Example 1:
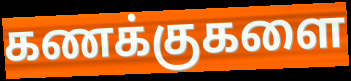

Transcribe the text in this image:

கணக்குகளை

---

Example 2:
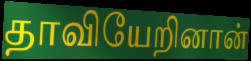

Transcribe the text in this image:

தாவியேறினான்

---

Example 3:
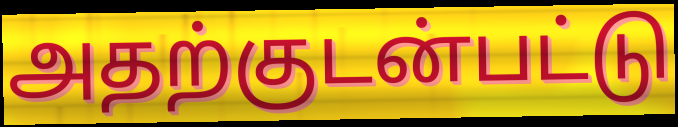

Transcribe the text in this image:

அதற்குடன்பட்டு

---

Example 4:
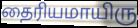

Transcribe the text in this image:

தைரியமாயிரு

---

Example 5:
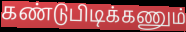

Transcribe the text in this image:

கண்டுபிடிக்கணும்